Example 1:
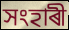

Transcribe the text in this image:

সংহাৰী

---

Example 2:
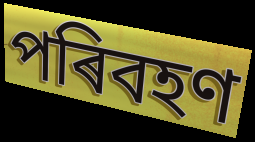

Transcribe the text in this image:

পৰিবহণ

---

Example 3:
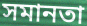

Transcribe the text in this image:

সমানতা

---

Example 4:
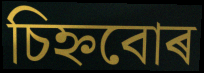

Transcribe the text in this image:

চিহ্নবোৰ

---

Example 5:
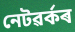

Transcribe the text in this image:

নেটৱৰ্কৰ